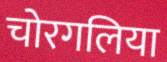
चोरगलिया